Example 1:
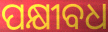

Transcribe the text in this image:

ପକ୍ଷୀବଧ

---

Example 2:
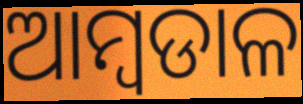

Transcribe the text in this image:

ଆମ୍ବଡାଳ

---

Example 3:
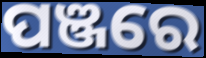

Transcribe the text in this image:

ପଞ୍ଜରେ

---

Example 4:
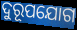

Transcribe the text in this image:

ଦୁରୂପଯୋଗ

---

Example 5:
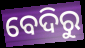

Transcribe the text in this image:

ବେଦିରୁ